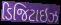
ડિજિટાઇઝ